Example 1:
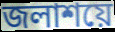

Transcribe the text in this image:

জলাশয়ে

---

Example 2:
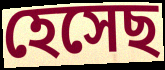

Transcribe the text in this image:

হেসেছ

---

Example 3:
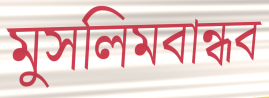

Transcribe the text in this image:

মুসলিমবান্ধব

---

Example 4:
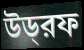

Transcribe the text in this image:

উড্‌রফ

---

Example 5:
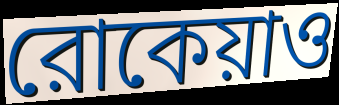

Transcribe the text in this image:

রোকেয়াও